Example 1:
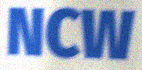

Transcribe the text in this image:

NCW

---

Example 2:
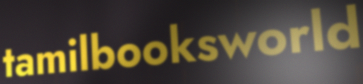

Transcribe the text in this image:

tamilbooksworld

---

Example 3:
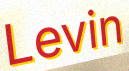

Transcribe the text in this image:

Levin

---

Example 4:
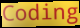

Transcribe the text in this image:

Coding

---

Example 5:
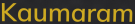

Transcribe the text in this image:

Kaumaram